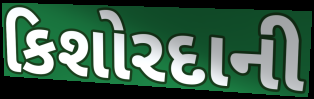
કિશોરદાની